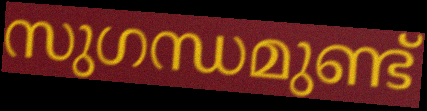
സുഗന്ധമുണ്ട്